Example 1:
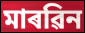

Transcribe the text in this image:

মাৰৱিন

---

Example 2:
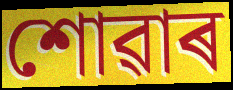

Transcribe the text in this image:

শোৱাৰ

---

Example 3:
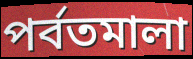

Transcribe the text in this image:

পৰ্বতমালা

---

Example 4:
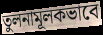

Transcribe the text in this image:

তুলনামূলকভাবে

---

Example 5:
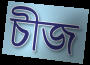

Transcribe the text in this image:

চীজ